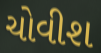
ચોવીશ